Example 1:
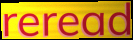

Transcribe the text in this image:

reread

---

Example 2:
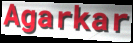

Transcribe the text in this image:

Agarkar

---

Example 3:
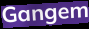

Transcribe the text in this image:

Gangem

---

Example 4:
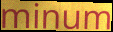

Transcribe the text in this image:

minum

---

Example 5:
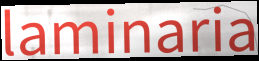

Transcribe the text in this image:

laminaria